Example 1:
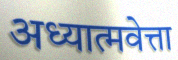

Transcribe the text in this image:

अध्यात्मवेत्ता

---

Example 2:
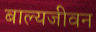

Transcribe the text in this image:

बाल्यजीवन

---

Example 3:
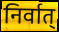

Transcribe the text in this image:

निर्वात्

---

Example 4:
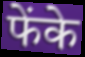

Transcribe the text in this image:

फेंके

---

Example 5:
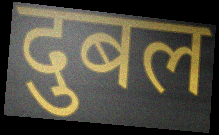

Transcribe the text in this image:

दुबल